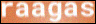
raagas